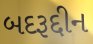
બદરૂદ્દીન